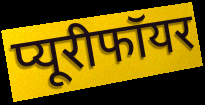
प्यूरीफॉयर